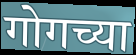
गोगच्या